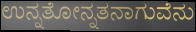
ಉನ್ನತೋನ್ನತನಾಗುವೆನು